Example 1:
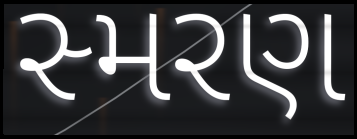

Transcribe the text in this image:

સ્મરણ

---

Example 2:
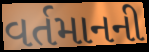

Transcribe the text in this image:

વર્તમાનની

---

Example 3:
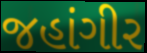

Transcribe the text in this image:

જહાંગીર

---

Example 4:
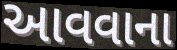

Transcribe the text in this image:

આવવાના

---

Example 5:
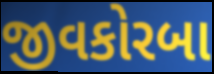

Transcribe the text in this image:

જીવકોરબા